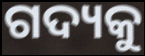
ଗଦ୍ୟକୁ